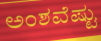
ಅಂಶವೆಷ್ಟು